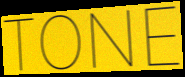
TONE